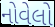
નોવેલો